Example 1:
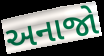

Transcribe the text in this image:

અનાજો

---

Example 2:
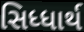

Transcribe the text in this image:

સિધ્ધાર્થ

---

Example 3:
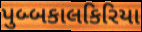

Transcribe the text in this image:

પુબ્બકાલકિરિયા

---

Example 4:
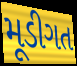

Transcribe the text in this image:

મૂડીગત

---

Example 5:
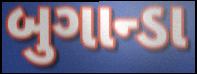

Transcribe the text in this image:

બુગાન્ડા